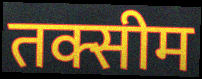
तक्सीम